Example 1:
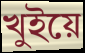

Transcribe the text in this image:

খুইয়ে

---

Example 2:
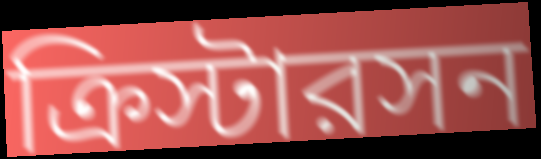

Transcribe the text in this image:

ক্রিস্টারসন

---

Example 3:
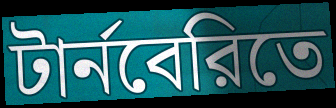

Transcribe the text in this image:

টার্নবেরিতে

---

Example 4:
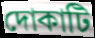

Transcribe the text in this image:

দোকাটি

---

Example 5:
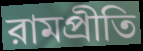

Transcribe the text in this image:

রামপ্রীতি